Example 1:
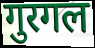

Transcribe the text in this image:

गुरगल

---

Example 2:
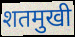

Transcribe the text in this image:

शतमुखी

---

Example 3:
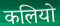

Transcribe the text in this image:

कलियो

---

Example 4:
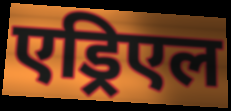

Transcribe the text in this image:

एड्रिएल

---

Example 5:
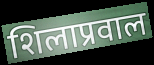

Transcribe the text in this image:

शिलाप्रवाल